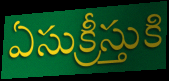
ఏసుక్రీస్తుకి